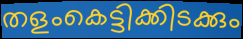
തളംകെട്ടിക്കിടക്കും